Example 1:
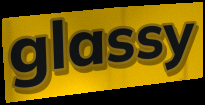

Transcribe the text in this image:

glassy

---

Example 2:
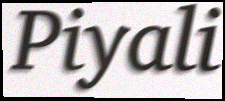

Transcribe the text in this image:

Piyali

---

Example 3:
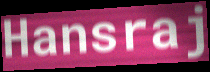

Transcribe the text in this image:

Hansraj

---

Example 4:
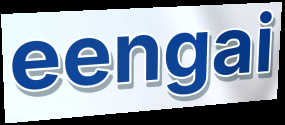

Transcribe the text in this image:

eengai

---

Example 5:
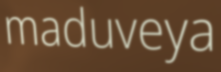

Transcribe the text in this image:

maduveya